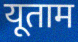
यूताम